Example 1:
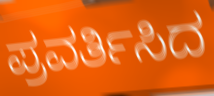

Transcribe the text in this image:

ಪ್ರವರ್ತಿಸಿದ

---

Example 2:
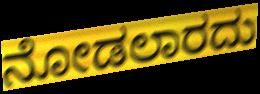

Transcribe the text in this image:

ನೋಡಲಾರದು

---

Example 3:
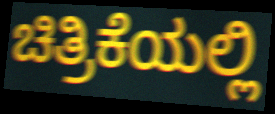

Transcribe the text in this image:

ಚಿತ್ರಿಕೆಯಲ್ಲಿ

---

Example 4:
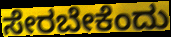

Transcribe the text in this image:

ಸೇರಬೇಕೆಂದು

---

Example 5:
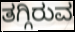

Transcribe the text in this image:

ತಗ್ಗಿರುವ